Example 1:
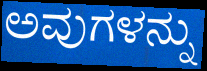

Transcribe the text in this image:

ಅವುಗಳನ್ನು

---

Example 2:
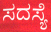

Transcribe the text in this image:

ಸದಸ್ಯೆ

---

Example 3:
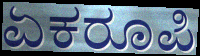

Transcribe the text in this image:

ಏಕರೂಪಿ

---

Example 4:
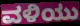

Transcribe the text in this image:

ವಳಿಯು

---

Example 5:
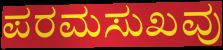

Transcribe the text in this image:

ಪರಮಸುಖವು